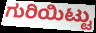
ಗುರಿಯಿಟ್ಟು